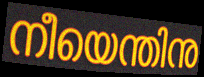
നീയെന്തിനു